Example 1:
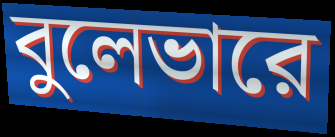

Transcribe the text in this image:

বুলেভারে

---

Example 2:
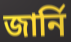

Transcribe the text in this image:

জার্নি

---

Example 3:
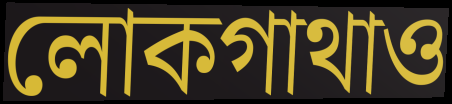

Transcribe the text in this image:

লোকগাথাও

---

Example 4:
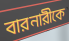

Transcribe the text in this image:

বারনারীকে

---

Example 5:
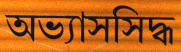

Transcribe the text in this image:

অভ্যাসসিদ্ধ